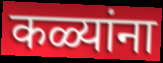
कळ्यांना